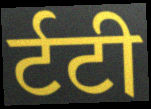
र्टटी